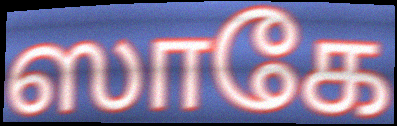
ஸாகே